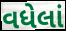
વધેલાં